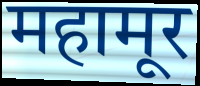
महामूर